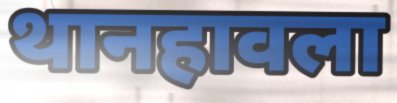
थानहावला